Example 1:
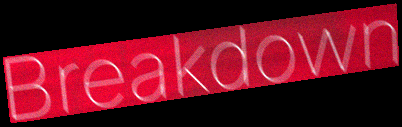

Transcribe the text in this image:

Breakdown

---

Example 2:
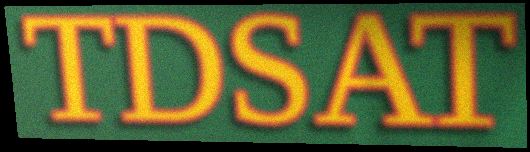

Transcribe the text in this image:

TDSAT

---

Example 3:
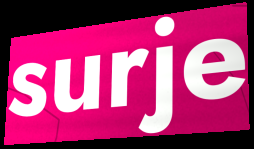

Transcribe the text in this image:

surje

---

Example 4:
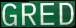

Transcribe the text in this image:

GRED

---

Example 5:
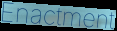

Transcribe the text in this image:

Enactment